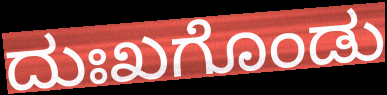
ದುಃಖಗೊಂಡು